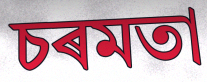
চৰমতা